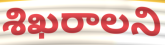
శిఖరాలని